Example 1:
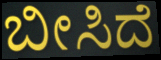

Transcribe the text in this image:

ಬೀಸಿದೆ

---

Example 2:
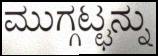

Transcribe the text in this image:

ಮುಗ್ಗಟ್ಟನ್ನು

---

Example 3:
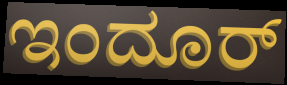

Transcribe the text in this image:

ಇಂದೂರ್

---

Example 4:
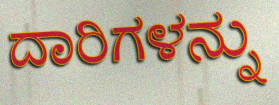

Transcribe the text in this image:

ದಾರಿಗಳನ್ನು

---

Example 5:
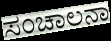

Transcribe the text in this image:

ಸಂಚಾಲನಾ